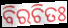
ବିରଚିତଃ